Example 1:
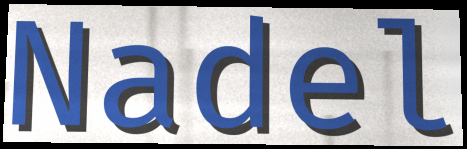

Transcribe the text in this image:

Nadel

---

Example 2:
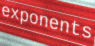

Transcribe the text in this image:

exponents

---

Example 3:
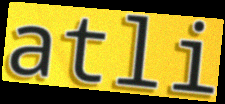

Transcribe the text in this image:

atli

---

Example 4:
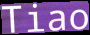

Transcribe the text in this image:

Tiao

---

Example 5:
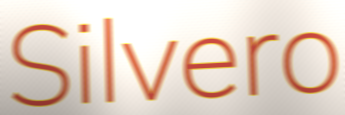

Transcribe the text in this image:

Silvero